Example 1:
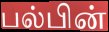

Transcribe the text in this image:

பல்பின்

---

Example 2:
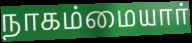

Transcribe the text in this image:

நாகம்மையார்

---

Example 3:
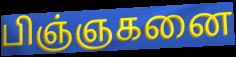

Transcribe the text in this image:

பிஞ்ஞகனை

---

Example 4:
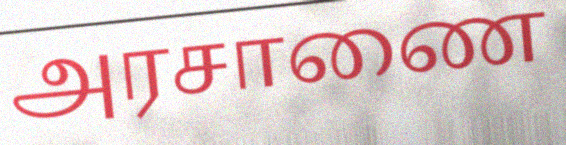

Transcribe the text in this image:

அரசாணை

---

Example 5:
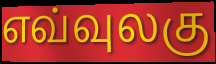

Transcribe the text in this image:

எவ்வுலகு